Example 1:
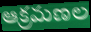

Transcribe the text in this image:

ఆక్రమణల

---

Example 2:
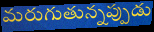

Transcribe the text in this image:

మరుగుతున్నప్పుడు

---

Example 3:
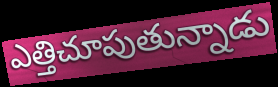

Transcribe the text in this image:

ఎత్తిచూపుతున్నాడు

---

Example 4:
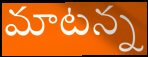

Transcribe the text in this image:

మాటన్న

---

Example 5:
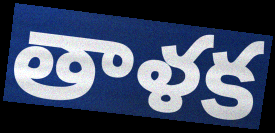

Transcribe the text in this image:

తాళక